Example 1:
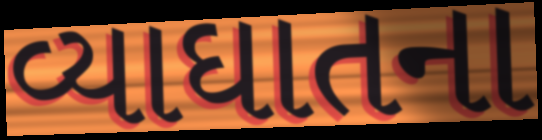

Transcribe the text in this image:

વ્યાઘાતના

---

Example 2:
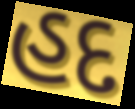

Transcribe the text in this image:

હદ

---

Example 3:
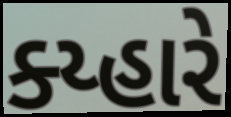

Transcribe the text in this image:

ક્ય્હારે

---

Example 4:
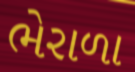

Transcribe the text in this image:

ભેરાળા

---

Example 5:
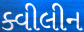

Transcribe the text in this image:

ક્વીલીન